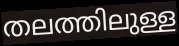
തലത്തിലുള്ള